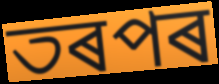
তৰপৰ